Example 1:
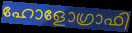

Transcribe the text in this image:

ഹോളോഗ്രാഫി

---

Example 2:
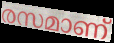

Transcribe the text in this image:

രസമാണ്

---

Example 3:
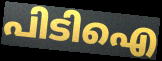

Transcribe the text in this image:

പിടിഐ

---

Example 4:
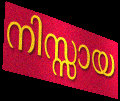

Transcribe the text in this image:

നിസ്സായ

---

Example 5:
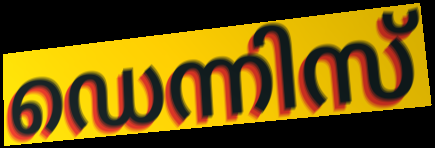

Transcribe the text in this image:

ഡെന്നിസ്